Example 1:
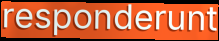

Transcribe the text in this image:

responderunt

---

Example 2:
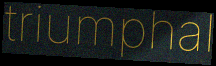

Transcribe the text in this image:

triumphal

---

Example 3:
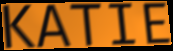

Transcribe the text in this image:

KATIE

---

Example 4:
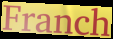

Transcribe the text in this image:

Franch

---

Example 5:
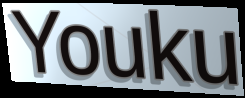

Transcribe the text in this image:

Youku